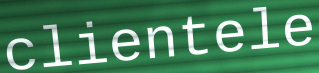
clientele